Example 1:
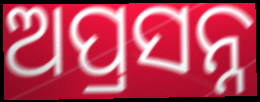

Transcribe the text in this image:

ଅପ୍ରସନ୍ନ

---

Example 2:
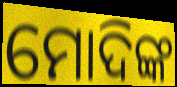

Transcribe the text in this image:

ମୋଦିଙ୍କ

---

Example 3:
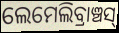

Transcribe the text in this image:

ଲେମେଲିବ୍ରାଞ୍ଚସ୍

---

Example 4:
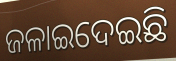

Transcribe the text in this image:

ଜଳାଇଦେଇଛି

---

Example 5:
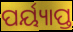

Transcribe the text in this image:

ପର୍ୟ୍ୟାପ୍ତ